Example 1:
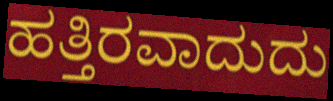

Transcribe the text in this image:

ಹತ್ತಿರವಾದುದು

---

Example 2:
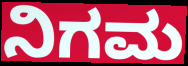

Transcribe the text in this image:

ನಿಗಮ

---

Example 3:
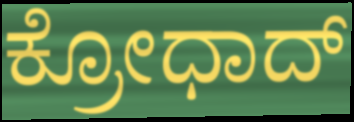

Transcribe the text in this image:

ಕ್ರೋಧಾದ್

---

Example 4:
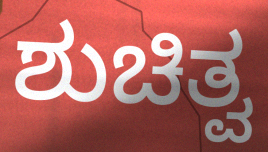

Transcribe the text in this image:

ಶುಚಿತ್ವ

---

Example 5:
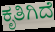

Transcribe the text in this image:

ಕೃತಿಗಿದೆ